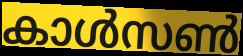
കാൾസൺ